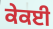
ਕੇਕਈ